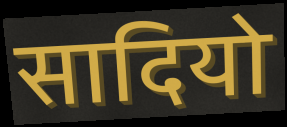
सादियो